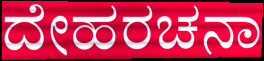
ದೇಹರಚನಾ